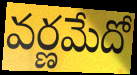
వర్ణమేదో